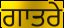
ਗਾਤਰੇ